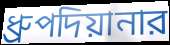
ধ্রুপদিয়ানার